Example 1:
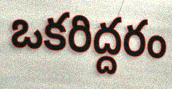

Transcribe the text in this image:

ఒకరిద్దరం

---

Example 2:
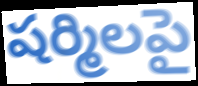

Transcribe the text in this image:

షర్మిలపై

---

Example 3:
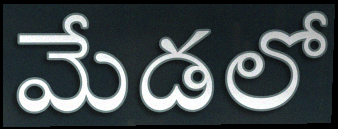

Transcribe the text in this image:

మేడలో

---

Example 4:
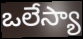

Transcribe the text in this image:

ఒలేస్యా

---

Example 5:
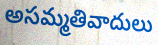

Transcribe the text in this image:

అసమ్మతివాదులు